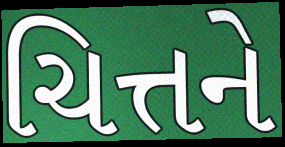
ચિત્તને